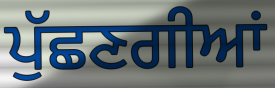
ਪੁੱਛਣਗੀਆਂ